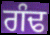
ਗੰਢ